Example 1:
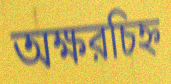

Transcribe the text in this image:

অক্ষরচিহ্ন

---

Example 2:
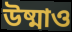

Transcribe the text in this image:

উষ্মাও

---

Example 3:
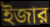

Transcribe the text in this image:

ইজার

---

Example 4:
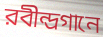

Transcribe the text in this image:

রবীন্দ্রগানে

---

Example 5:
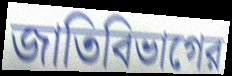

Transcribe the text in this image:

জাতিবিভাগের